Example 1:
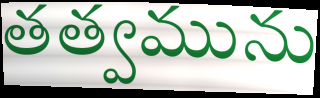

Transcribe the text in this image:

తత్వమును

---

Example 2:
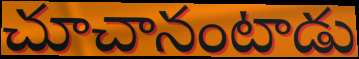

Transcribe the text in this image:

చూచానంటాడు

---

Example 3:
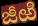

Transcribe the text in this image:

జీఱి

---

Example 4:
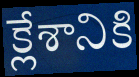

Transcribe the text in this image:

క్లేశానికి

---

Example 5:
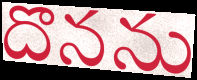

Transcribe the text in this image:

దొనను